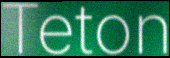
Teton